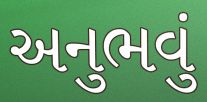
અનુભવું